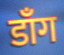
डाँग